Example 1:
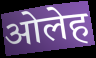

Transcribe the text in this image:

ओलेह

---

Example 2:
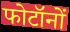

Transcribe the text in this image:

फोटॉनों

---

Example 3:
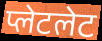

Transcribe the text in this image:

प्लेटलेट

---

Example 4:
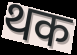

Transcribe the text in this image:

थक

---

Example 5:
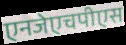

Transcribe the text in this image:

एनजेएचपीएस